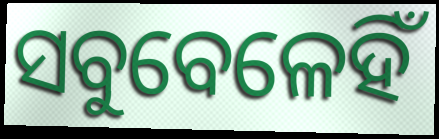
ସବୁବେଳେହିଁ